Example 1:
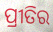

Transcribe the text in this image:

ପ୍ରୀତିର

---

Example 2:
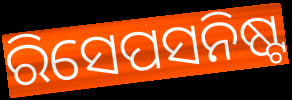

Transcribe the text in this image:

ରିସେପସନିଷ୍ଟ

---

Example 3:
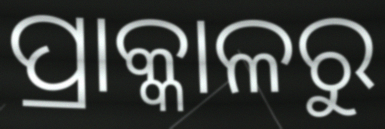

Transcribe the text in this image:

ପ୍ରାକ୍କାଳରୁ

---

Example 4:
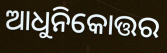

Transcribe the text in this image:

ଆଧୁନିକୋତ୍ତର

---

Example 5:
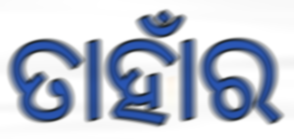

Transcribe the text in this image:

ତାହାଁର